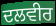
ਦਲਵੀਰ